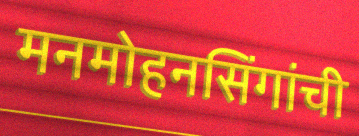
मनमोहनसिंगांची